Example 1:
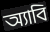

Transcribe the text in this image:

অ্যাবি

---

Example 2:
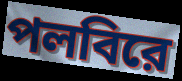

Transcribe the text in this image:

পলবিরে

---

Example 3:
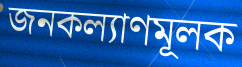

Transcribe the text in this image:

জনকল্যাণমূলক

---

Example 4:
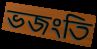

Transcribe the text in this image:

ভজংতি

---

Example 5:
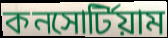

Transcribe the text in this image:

কনসোর্টিয়াম